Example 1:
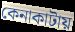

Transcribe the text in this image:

কেনাকাটায়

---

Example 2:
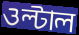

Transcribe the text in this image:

ওল্টাল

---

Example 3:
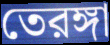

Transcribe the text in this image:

তেরঙ্গা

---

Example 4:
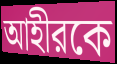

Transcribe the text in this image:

আহীরকে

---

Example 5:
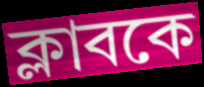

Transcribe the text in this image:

ক্লাবকে